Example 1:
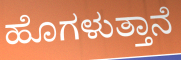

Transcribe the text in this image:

ಹೊಗಳುತ್ತಾನೆ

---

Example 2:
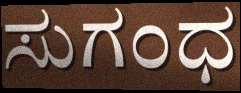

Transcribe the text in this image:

ಸುಗಂಧ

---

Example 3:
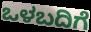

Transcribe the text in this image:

ಒಳಬದಿಗೆ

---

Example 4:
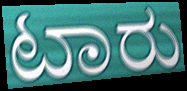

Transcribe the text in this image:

ಟಾರು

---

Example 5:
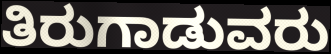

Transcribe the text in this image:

ತಿರುಗಾಡುವರು